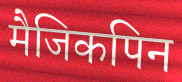
मैजिकपिन